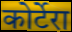
कोर्टेरा